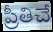
ప్రీతిచే